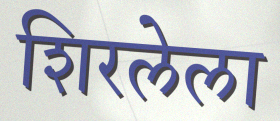
शिरलेला